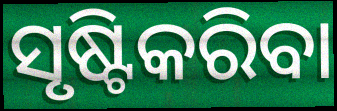
ସୃଷ୍ଟିକରିବା